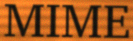
MIME